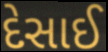
દેસાઈ